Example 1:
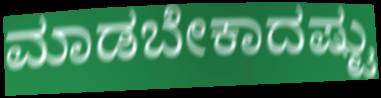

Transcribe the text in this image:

ಮಾಡಬೇಕಾದಷ್ಟು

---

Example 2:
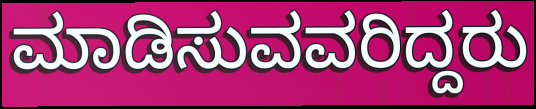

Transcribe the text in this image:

ಮಾಡಿಸುವವರಿದ್ದರು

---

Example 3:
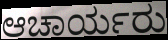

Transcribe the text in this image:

ಆಚಾರ್ಯರು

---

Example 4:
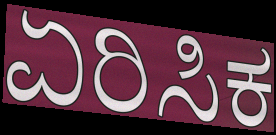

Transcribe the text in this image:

ಏರಿಸಿಕ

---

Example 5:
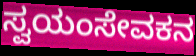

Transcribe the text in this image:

ಸ್ವಯಂಸೇವಕನ